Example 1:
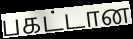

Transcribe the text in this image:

பகட்டான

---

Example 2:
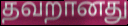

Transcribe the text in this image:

தவறானது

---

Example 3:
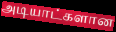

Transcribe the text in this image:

அடியாட்களான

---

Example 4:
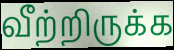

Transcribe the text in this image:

வீற்றிருக்க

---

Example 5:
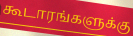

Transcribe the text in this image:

கூடாரங்களுக்கு